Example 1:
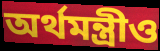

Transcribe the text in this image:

অর্থমন্ত্রীও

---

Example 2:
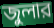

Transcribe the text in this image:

জুলার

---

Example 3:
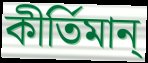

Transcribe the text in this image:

কীর্তিমান্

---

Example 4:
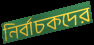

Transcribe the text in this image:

নির্বাচকদের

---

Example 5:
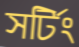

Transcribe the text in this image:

সর্টিং